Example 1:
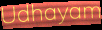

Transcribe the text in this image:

Udhayam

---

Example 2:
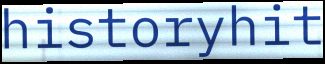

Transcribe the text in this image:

historyhit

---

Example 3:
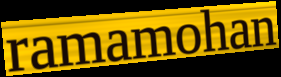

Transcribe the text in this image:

ramamohan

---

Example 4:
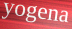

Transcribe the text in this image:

yogena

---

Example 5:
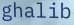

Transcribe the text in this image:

ghalib